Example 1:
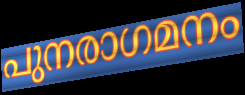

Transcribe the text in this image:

പുനരാഗമനം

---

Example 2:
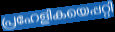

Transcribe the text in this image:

പ്രഹേളികയെപ്പറ്റി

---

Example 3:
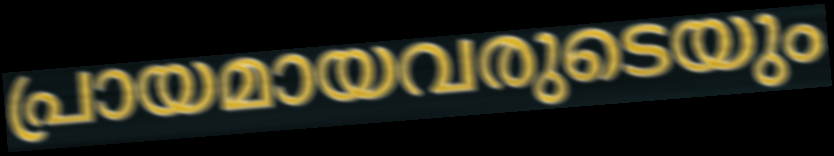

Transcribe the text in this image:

പ്രായമായവരുടെയും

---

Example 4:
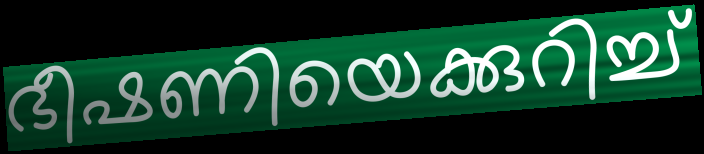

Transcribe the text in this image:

ഭീഷണിയെക്കുറിച്ച്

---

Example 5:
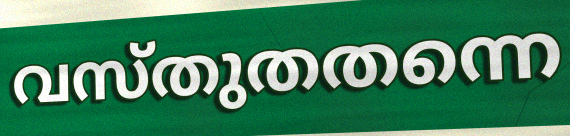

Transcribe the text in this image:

വസ്തുതതന്നെ